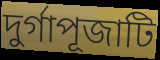
দুর্গাপূজাটি